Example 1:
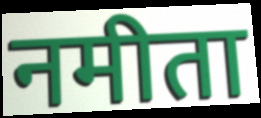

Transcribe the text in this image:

नमीता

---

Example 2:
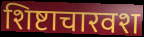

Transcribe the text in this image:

शिष्टाचारवश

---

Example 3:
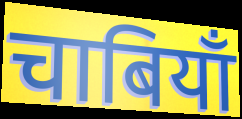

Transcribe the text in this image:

चाबियाँ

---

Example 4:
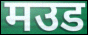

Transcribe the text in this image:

मउड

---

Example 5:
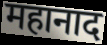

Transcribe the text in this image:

महानाद